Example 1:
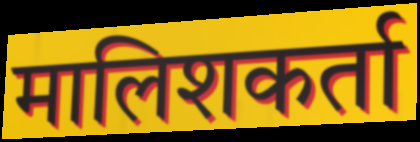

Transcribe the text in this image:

मालिशकर्ता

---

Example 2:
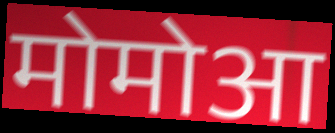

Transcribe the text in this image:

मोमोआ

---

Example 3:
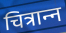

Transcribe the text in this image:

चित्रान्न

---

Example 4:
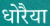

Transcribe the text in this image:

धोरैया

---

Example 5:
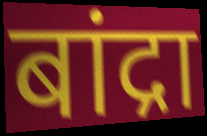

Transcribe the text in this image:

बांद्रा